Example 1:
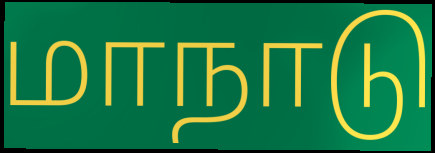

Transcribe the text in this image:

மாநாடு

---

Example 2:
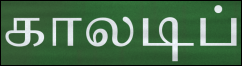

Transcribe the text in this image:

காலடிப்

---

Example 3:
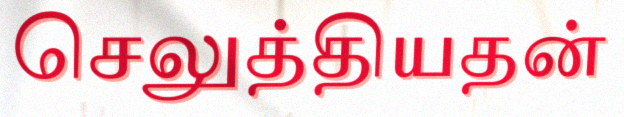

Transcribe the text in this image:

செலுத்தியதன்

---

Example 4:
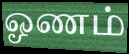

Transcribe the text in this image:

ஓணம்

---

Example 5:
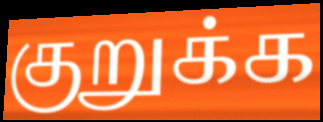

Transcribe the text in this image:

குறுக்க